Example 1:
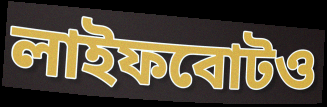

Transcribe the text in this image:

লাইফবোটও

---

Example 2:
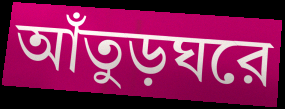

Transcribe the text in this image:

আঁতুড়ঘরে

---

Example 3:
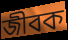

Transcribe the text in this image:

জীবক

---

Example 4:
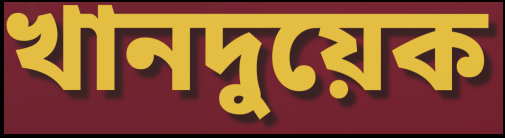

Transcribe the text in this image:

খানদুয়েক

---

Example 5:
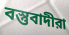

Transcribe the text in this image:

বস্তুবাদীরা